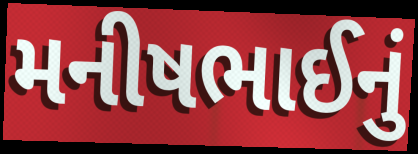
મનીષભાઈનું